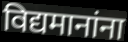
विद्यमानांना